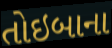
તોઇબાના